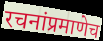
रचनांप्रमाणेच